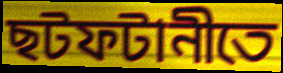
ছটফটানীতে